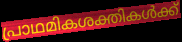
പ്രാഥമികശക്തികൾക്ക്